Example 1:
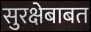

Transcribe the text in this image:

सुरक्षेबाबत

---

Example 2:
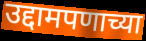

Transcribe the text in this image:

उद्दामपणाच्या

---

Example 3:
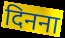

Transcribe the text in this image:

दिनना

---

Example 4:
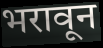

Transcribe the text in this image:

भरावून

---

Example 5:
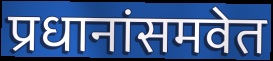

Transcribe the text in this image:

प्रधानांसमवेत